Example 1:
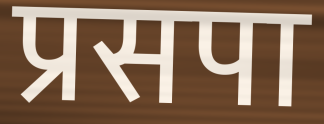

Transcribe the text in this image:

प्रसपा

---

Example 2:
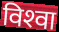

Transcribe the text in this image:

विश्‍वा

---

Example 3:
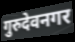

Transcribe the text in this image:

गुरुदेवनगर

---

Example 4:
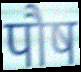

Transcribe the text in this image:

पौष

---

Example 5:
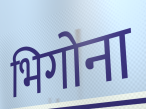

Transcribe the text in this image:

भिगोना